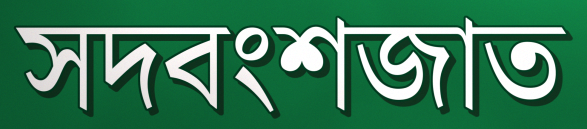
সদবংশজাত